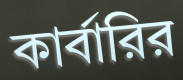
কার্বারির